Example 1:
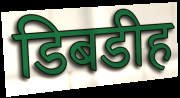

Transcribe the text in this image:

डिबडीह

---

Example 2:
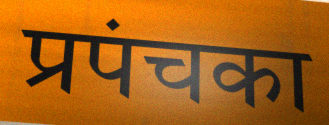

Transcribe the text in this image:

प्रपंचका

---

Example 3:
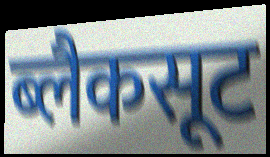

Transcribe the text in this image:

ब्लैकसूट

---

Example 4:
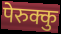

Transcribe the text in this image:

पेरुक्कु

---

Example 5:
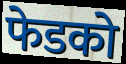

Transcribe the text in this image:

फेडको